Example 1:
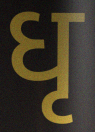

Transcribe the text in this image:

धृ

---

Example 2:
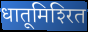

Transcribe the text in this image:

धातूमिश्रित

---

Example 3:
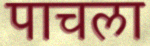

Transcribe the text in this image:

पाचला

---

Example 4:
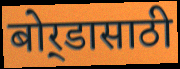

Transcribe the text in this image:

बोर्डासाठी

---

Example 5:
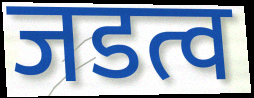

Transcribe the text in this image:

जडत्व